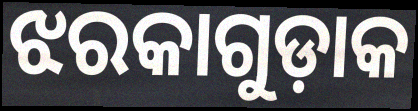
ଝରକାଗୁଡ଼ାକ